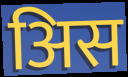
अिस